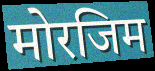
मोरजिम